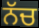
ਨੱਚ